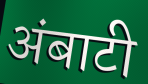
अंबाटी